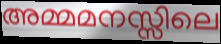
അമ്മമനസ്സിലെ